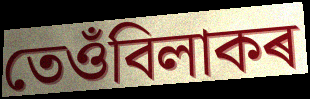
তেওঁবিলাকৰ